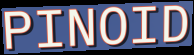
PINOID